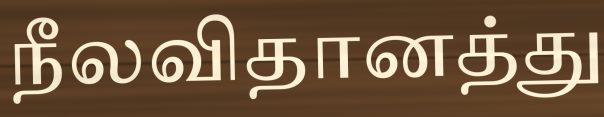
நீலவிதானத்து